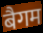
बैगम